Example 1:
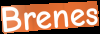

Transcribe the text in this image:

Brenes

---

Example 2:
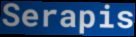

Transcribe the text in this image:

Serapis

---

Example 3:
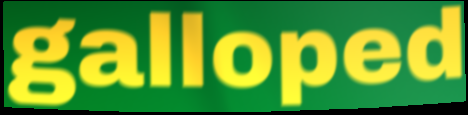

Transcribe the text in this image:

galloped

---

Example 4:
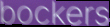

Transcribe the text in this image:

bockers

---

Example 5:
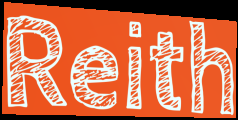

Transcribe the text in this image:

Reith